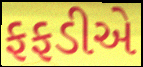
ફફડીએ